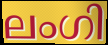
ലംഗി